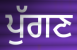
ਪੁੱਗਣ